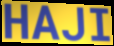
HAJI